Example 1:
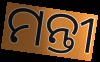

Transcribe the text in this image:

ମନ୍ତୀ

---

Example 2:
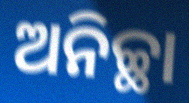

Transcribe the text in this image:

ଅନିଚ୍ଛା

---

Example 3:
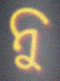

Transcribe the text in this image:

ନୁ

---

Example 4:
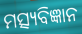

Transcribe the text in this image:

ମତ୍ସ୍ୟବିଜ୍ଞାନ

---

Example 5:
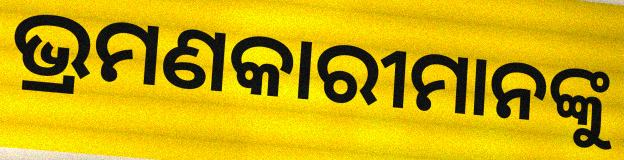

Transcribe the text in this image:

ଭ୍ରମଣକାରୀମାନଙ୍କୁ